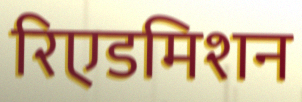
रिएडमिशन